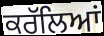
ਕਰੱਲਿਆਂ